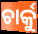
ଚାର୍କୁ